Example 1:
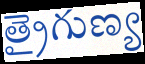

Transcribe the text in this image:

త్రైగుణ్య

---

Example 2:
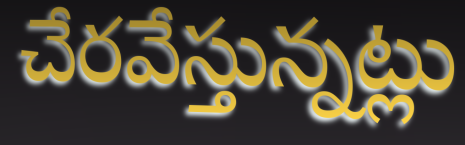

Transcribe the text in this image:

చేరవేస్తున్నట్లు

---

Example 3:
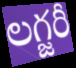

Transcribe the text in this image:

లగ్జరీ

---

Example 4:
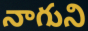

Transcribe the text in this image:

నాగుని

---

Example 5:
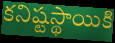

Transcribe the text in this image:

కనిష్టస్థాయికి